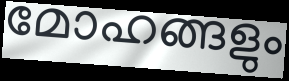
മോഹങ്ങളും